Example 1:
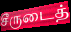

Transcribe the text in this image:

சீருடைத்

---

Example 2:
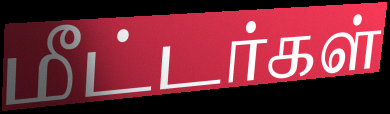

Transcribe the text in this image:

மீட்டர்கள்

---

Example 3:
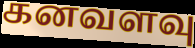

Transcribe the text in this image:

கனவளவு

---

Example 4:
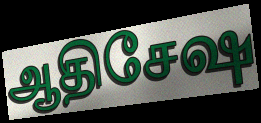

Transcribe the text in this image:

ஆதிசேஷ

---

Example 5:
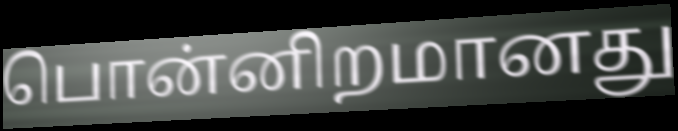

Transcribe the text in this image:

பொன்னிறமானது